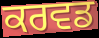
ਕਰਵਡ